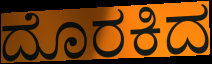
ದೊರಕಿದ